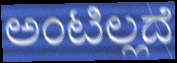
ಅಂಟಿಲ್ಲದೆ